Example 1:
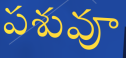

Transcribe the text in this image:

పశువూ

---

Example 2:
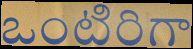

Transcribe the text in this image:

ఒంటిరిగా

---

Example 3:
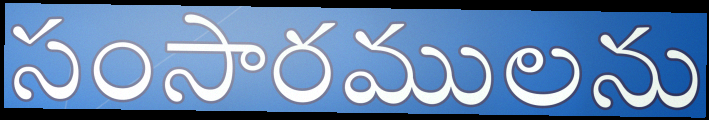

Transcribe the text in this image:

సంసారములను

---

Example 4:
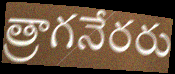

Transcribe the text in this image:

త్రాగనేరరు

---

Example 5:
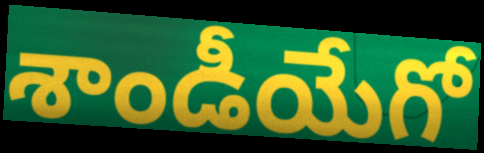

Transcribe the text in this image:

శాండీయేగో